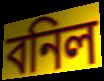
বনিল